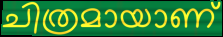
ചിത്രമായാണ്